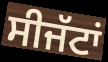
ਸੀਜੱਟਾਂ